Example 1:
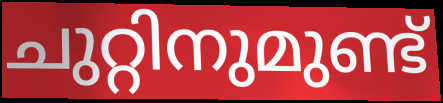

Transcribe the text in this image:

ചുറ്റിനുമുണ്ട്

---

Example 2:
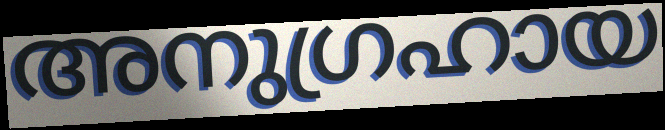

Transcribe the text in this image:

അനുഗ്രഹായ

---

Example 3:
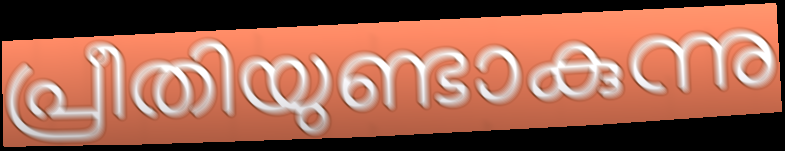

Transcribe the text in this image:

പ്രീതിയുണ്ടാകുന്നു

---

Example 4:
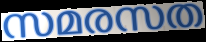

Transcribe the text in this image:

സമരസത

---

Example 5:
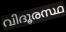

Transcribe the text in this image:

വിദൂരസ്ഥ